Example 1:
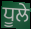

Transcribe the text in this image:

ਧੂਲੇ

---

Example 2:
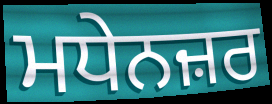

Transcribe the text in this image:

ਮਧੇਨਜ਼ਰ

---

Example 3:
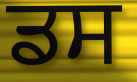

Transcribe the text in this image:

ਡਸ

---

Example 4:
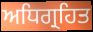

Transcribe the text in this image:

ਅਧਿਗ੍ਰਹਿਤ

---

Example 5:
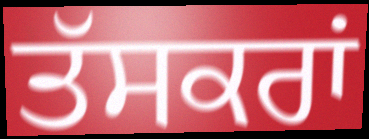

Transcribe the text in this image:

ਤੱਸਕਰਾਂ